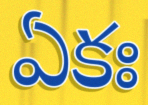
ఏకః